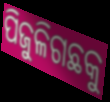
ପିଜୁଳିଗଛକୁ